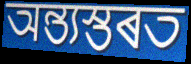
অন্ত্যস্তৰত